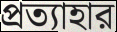
প্রত্যাহার